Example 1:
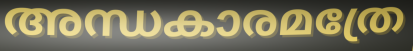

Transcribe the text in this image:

അന്ധകാരമത്രേ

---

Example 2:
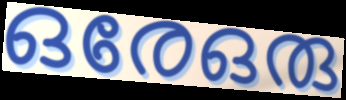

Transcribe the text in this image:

ഒരേഒരു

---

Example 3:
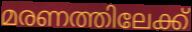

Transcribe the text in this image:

മരണത്തിലേക്ക്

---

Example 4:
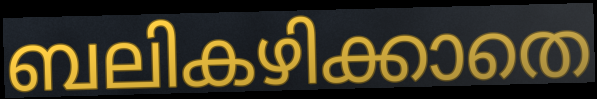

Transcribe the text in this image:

ബലികഴിക്കാതെ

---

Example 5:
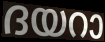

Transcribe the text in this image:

ദയറാ